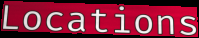
Locations